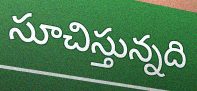
సూచిస్తున్నది